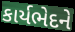
કાર્યભેદને